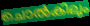
ചൊൽകിലും